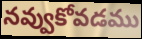
నవ్వుకోవడము